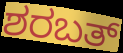
ಶರಬತ್